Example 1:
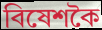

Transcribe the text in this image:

বিষেশকৈ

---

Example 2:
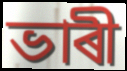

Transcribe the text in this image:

ভাৰী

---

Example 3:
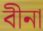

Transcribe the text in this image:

বীনা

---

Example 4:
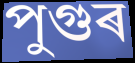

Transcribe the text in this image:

পুগুৰ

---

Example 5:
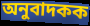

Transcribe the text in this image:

অনুবাদকক